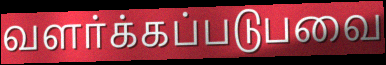
வளர்க்கப்படுபவை